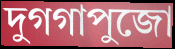
দুগগাপুজো